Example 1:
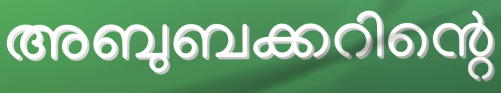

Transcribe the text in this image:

അബുബക്കറിന്റെ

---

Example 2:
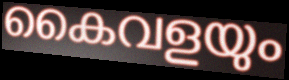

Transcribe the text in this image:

കൈവളയും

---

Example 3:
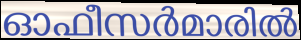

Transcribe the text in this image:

ഓഫീസർമാരിൽ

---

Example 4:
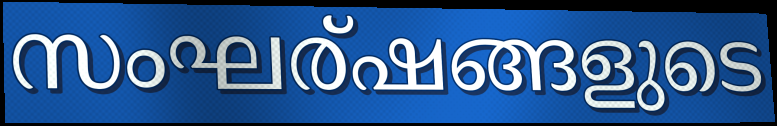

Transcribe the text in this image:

സംഘര്ഷങ്ങളുടെ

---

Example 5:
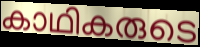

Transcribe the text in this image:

കാഥികരുടെ